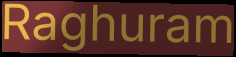
Raghuram